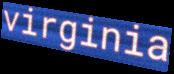
virginia